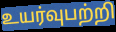
உயர்வுபற்றி